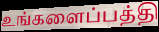
உங்களைப்பத்தி